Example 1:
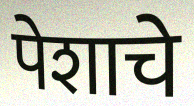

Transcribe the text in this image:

पेशाचे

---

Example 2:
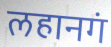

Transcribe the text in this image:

लहानगं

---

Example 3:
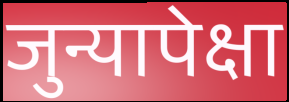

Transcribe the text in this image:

जुन्यापेक्षा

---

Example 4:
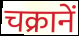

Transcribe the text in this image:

चक्रानें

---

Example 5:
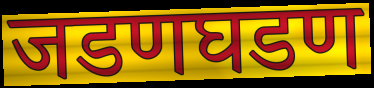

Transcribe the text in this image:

जडणघडण